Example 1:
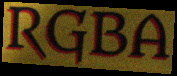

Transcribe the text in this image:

RGBA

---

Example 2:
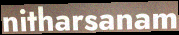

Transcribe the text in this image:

nitharsanam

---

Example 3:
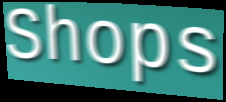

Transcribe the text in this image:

Shops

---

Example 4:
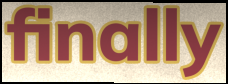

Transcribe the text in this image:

finally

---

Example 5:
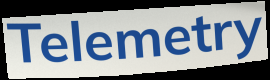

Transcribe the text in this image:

Telemetry